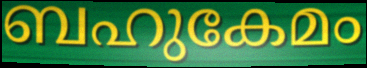
ബഹുകേമം